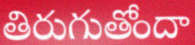
తిరుగుతోందా